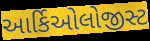
આર્કિઓલોજીસ્ટ